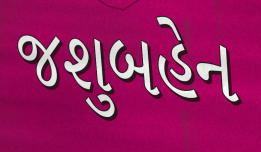
જશુબહેન